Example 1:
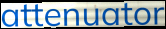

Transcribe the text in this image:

attenuator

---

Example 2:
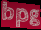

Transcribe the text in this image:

bpg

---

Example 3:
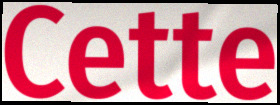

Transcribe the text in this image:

Cette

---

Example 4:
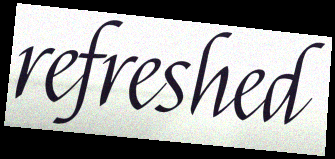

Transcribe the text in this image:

refreshed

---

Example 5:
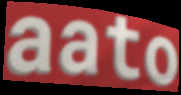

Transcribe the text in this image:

aato